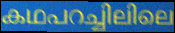
കഥപറച്ചിലിലെ